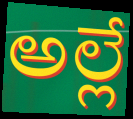
అల్లే